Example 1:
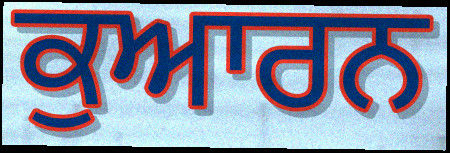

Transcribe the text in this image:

ਕੁਆਰਨ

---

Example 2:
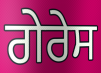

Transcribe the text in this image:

ਗੇਰੇਸ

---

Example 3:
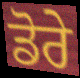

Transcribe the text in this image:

ਡੋਰੇ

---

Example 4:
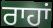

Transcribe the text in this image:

ਰਾਹਾਂ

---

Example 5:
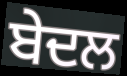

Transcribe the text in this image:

ਬੇਦਲ